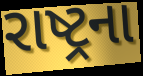
રાષ્ટ્રના